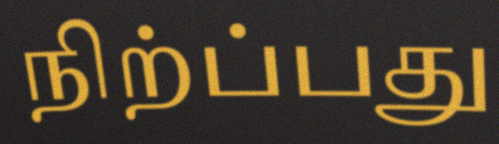
நிற்ப்பது